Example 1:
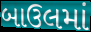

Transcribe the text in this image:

બાઉલમાં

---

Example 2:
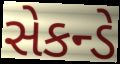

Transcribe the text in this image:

સેકન્ડે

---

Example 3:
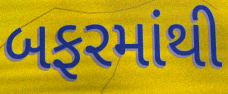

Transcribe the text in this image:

બફરમાંથી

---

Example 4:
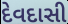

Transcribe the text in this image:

દેવદાસી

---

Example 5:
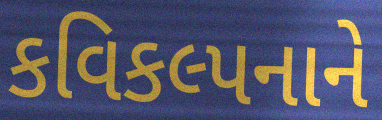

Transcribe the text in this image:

કવિકલ્પનાને